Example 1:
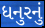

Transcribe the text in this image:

ધનુરનું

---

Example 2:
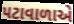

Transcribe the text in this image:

પટાવાળાએ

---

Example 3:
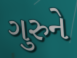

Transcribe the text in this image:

ગુરુને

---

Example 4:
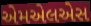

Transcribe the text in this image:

એમએલએસ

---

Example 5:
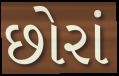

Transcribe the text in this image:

છોરાં